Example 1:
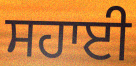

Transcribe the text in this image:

ਸਹਾਈ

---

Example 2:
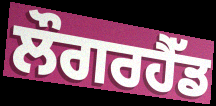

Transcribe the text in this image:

ਲੌਗਰਹੈੱਡ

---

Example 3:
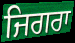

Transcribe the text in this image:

ਜਿਗਰਾ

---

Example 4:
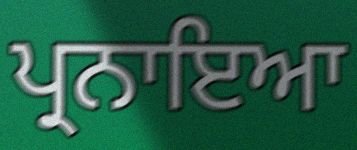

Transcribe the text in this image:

ਪ੍ਰਨਾਇਆ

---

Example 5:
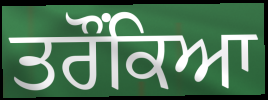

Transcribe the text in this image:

ਤਰੌਂਕਿਆ